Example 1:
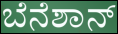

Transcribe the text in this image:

ಬೆನೆಶಾನ್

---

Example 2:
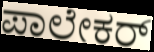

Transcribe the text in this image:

ಪಾಲೇಕರ್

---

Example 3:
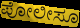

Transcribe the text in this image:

ಪೋಲೀಸೂ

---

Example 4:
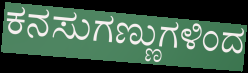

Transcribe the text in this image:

ಕನಸುಗಣ್ಣುಗಳಿಂದ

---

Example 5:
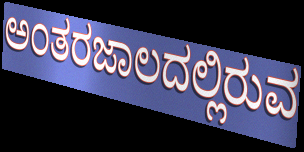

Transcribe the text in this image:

ಅಂತರಜಾಲದಲ್ಲಿರುವ